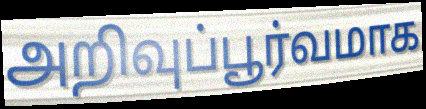
அறிவுப்பூர்வமாக